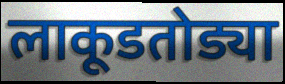
लाकूडतोड्या